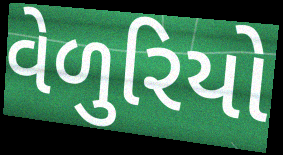
વેળુરિયો